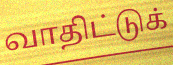
வாதிட்டுக்